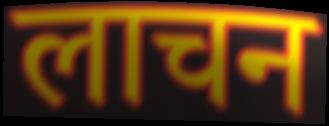
लाचन